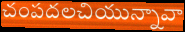
చంపదలచియున్నావా